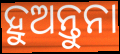
ହୁଅନ୍ତୁନା